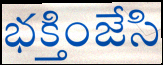
భక్తింజేసి